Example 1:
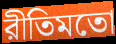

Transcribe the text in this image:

রীতিমতো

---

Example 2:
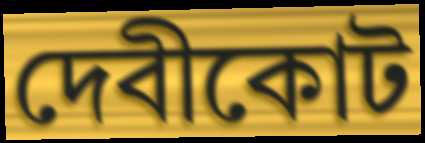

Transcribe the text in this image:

দেবীকোট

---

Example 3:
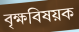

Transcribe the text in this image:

বৃক্ষবিষয়ক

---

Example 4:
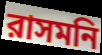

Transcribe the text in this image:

রাসমনি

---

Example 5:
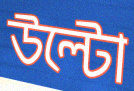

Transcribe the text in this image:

উল্টো